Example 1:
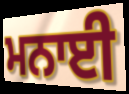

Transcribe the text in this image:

ਮਨਾਈ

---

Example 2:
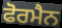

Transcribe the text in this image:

ਫੋਰਮੈਨ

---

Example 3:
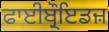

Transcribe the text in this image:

ਫਾਈਬ੍ਰੌਇਡਜ਼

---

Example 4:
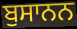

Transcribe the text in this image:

ਬੁਸਾਨਨ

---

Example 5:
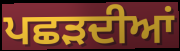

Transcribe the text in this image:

ਪਛੜਦੀਆਂ